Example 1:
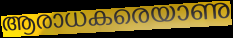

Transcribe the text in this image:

ആരാധകരെയാണു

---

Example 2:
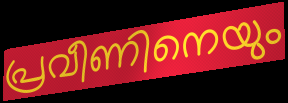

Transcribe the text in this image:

പ്രവീണിനെയും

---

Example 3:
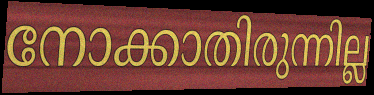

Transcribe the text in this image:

നോക്കാതിരുന്നില്ല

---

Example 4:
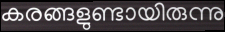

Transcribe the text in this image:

കരങ്ങളുണ്ടായിരുന്നു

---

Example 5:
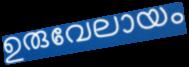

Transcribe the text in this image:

ഉരുവേലായം